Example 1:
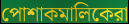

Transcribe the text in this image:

পোশাকমালিকেরা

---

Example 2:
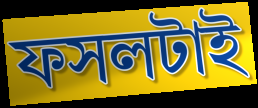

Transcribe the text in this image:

ফসলটাই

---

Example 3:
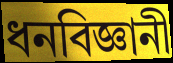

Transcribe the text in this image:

ধনবিজ্ঞানী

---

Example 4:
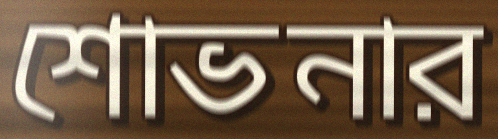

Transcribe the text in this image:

শোভনার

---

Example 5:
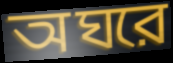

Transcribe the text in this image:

অঘরে